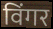
विंगर